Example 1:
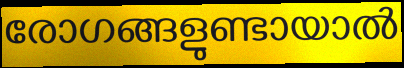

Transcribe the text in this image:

രോഗങ്ങളുണ്ടായാൽ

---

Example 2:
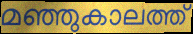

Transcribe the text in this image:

മഞ്ഞുകാലത്ത്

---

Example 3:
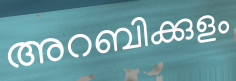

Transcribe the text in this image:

അറബിക്കുളം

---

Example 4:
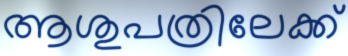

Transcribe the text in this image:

ആശുപത്രിലേക്ക്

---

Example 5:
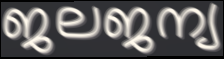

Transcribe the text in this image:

ജലജന്യ